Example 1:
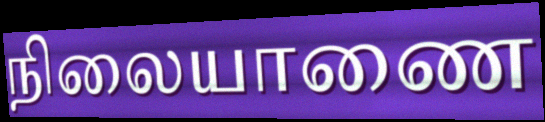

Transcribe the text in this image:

நிலையாணை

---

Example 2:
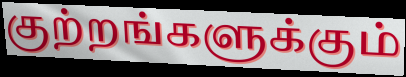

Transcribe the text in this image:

குற்றங்களுக்கும்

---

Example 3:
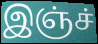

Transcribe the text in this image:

இஞ்ச்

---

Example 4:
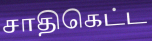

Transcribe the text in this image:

சாதிகெட்ட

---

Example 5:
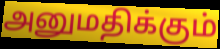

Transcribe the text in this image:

அனுமதிக்கும்